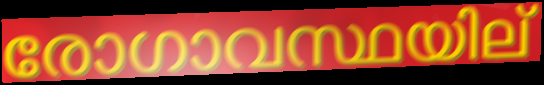
രോഗാവസ്ഥയില്